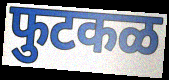
फुटकळ